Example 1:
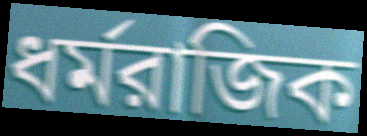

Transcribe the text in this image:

ধর্মরাজিক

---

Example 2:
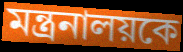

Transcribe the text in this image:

মন্ত্রনালয়কে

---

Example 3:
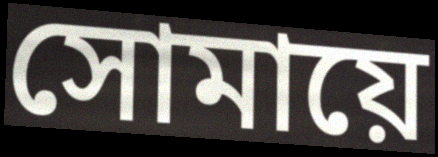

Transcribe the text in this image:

সোমায়ে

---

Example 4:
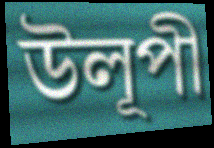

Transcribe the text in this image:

উলূপী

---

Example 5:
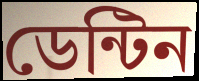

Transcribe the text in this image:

ডেন্টিন